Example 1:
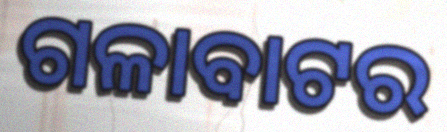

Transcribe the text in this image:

ଗଳାବାଟର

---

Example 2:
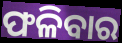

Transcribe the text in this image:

ଫଳିବାର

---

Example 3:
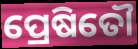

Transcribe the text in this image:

ପ୍ରେଷିତୌ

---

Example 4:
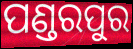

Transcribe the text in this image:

ପଣ୍ଡରପୁର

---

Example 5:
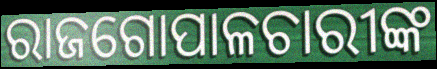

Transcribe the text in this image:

ରାଜଗୋପାଳଚାରୀଙ୍କ